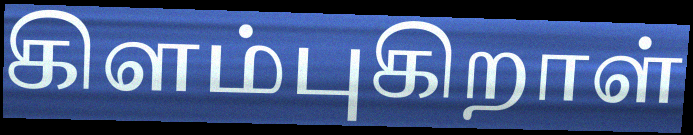
கிளம்புகிறாள்